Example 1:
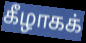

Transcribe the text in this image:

கீழாகக்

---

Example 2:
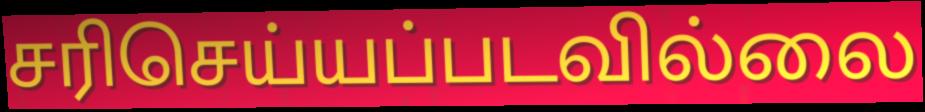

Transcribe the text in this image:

சரிசெய்யப்படவில்லை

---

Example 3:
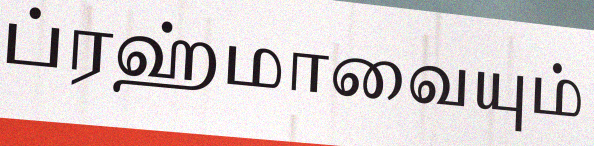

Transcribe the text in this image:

ப்ரஹ்மாவையும்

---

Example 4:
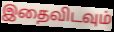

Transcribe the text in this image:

இதைவிடவும்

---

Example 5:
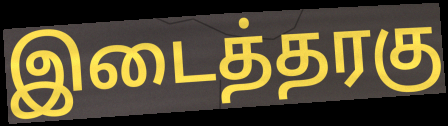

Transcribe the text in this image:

இடைத்தரகு